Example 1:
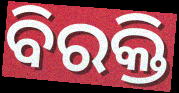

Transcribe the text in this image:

ବିରକ୍ତି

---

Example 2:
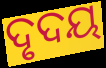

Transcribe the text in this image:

ଦୃଦୟ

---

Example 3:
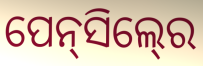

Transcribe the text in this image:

ପେନ୍‍ସିଲ୍‍ରେ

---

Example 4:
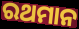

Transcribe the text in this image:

ରଥମାନ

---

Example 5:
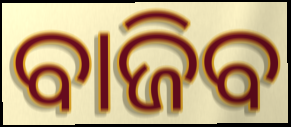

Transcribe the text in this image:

ବାଜିବ